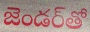
జెండర్‌తో